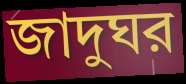
জাদুঘর